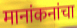
मानांकनांचा